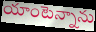
యాంటెన్నాను